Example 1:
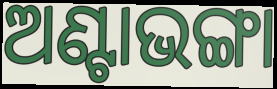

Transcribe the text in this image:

ଅଣ୍ଟାଭଙ୍ଗା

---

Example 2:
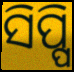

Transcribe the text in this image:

ସିପ୍ପି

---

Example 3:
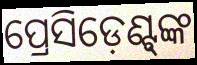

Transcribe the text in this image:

ପ୍ରେସିଡ଼େଣ୍ଟ୍‍ଙ୍କ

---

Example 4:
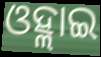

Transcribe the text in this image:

ଓହ୍ଲାଇ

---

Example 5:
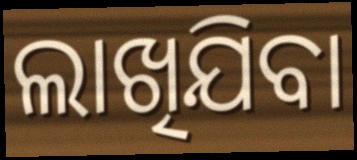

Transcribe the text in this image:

ଲାଖିଯିବା